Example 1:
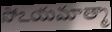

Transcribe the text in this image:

సోఽయమాత్మా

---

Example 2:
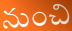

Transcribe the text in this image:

నుంచి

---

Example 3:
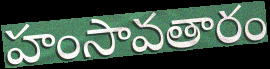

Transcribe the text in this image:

హంసావతారం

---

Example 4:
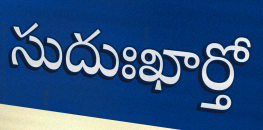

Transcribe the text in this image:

సుదుఃఖార్తో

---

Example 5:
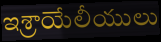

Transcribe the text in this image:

ఇశ్రాయేలీయులు